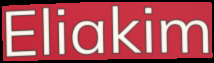
Eliakim